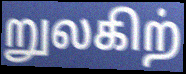
றுலகிற்